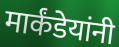
मार्कंडेयांनी